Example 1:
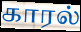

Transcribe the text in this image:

காரல்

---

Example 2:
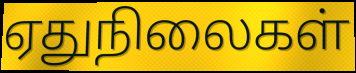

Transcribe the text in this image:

ஏதுநிலைகள்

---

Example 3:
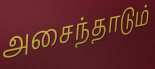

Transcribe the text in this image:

அசைந்தாடும்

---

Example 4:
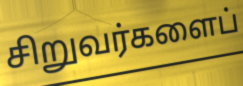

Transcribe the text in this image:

சிறுவர்களைப்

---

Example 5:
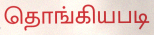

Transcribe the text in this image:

தொங்கியபடி